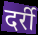
दर्री